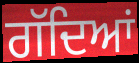
ਗੱਦਿਆਂ